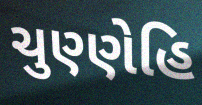
ચુણ્ણેહિ